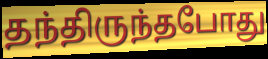
தந்திருந்தபோது